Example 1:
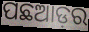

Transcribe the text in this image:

ପଛଆଡ଼ର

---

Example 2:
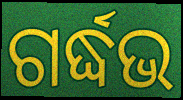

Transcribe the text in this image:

ଗର୍ଦ୍ଧଭ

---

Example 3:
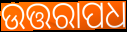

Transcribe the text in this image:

ଉତ୍ତରାପଧ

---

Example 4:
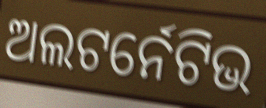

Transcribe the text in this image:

ଅଲଟର୍ନେଟିଭ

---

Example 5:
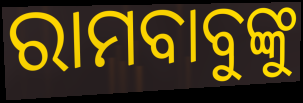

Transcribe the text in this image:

ରାମବାବୁଙ୍କୁ